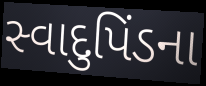
સ્વાદુપિંડના